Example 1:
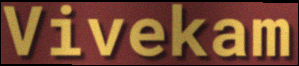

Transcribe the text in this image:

Vivekam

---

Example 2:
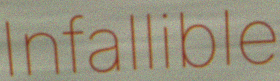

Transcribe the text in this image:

Infallible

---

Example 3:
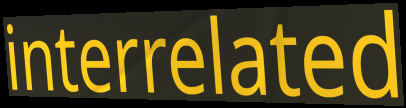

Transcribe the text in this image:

interrelated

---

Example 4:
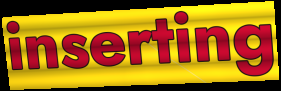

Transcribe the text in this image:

inserting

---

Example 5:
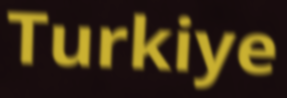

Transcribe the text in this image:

Turkiye